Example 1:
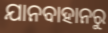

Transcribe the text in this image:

ଯାନବାହାନରୁ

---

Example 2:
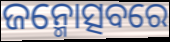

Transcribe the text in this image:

ଜନ୍ମୋତ୍ସବରେ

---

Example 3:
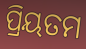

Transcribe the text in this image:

ପ୍ରିୟତମ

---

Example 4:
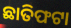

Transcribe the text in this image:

ଛାତିଫଟା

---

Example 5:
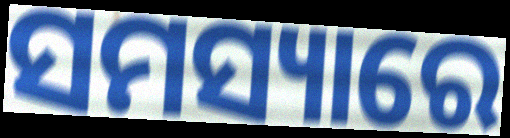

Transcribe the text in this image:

ସମସ୍ୟାରେ